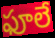
ఫూలే